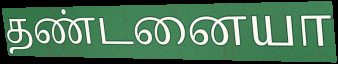
தண்டனையா